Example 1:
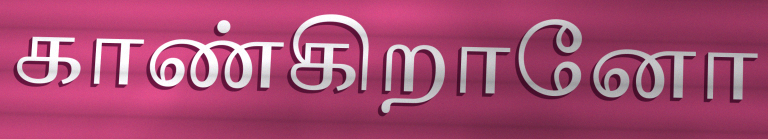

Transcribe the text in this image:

காண்கிறானோ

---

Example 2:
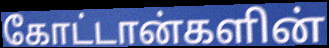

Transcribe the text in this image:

கோட்டான்களின்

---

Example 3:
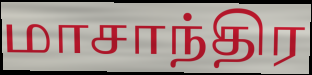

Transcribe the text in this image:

மாசாந்திர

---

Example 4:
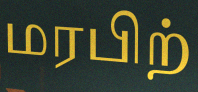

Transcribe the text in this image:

மரபிற்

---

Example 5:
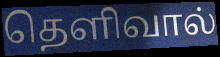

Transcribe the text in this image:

தெளிவால்